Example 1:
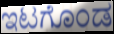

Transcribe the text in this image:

ಇಟಗೊಂಡ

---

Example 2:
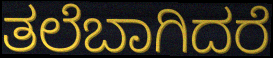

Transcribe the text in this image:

ತಲೆಬಾಗಿದರೆ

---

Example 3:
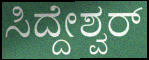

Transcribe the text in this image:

ಸಿದ್ದೇಶ್ವರ್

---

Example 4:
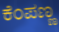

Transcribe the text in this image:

ಕೆಂಪಣ್ಣ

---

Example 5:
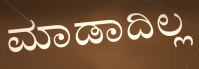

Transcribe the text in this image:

ಮಾಡಾದಿಲ್ಲ